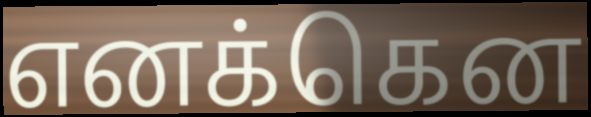
எனக்கென